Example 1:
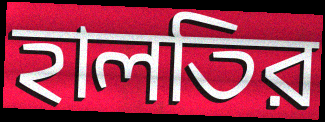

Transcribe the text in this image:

হালতির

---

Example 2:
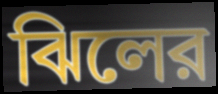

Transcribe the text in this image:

ঝিলের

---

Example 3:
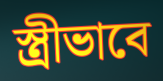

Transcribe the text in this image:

স্ত্রীভাবে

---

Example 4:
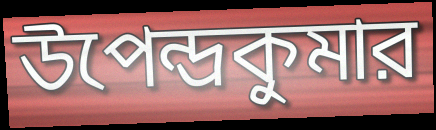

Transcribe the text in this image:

উপেন্দ্রকুমার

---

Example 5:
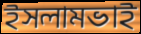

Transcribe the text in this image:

ইসলামভাই